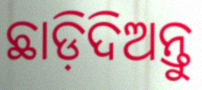
ଛାଡ଼ିଦିଅନ୍ତୁ